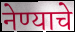
नेण्याचे